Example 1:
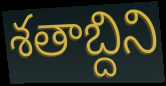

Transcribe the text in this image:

శతాబ్దిని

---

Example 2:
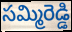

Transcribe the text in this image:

సమ్మిరెడ్డి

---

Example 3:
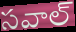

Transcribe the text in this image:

సవాల్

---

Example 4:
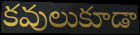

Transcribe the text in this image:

కవులుకూడా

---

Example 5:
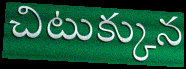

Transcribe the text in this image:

చిటుక్కున